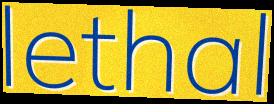
lethal